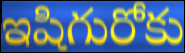
ఇషిగురోకు